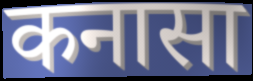
कनासा